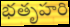
భతృహరి